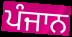
ਪੰਜਾਨ